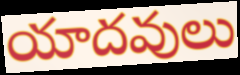
యాదవులు